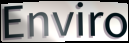
Enviro